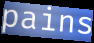
pains